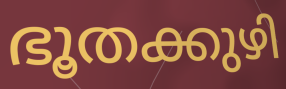
ഭൂതക്കുഴി